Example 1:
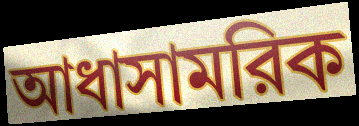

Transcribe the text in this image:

আধাসামরিক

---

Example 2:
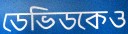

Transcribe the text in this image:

ডেভিডকেও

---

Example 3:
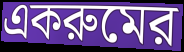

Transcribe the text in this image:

একরুমের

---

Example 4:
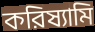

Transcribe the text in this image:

করিষ্যামি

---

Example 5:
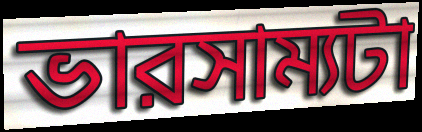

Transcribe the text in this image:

ভারসাম্যটা